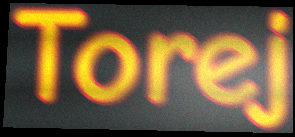
Torej